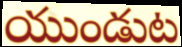
యుండుట